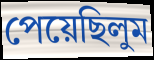
পেয়েছিলুম